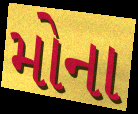
મોના